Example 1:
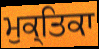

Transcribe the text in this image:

ਮੁਕ੍ਤਿਕਾ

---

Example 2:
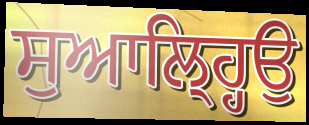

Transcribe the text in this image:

ਸੁਆਲ੍ਹ੍ਹਿਉ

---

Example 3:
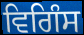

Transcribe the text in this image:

ਵਿਗਿੰਸ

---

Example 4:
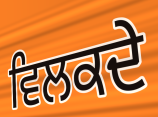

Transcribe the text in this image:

ਵਿਲਕਦੇ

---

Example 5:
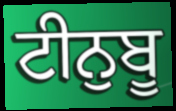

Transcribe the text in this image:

ਟੀਨੁਬੂ